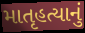
માતૃહત્યાનું